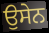
ਉਸੇਨ